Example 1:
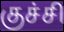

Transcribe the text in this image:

குச்சி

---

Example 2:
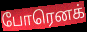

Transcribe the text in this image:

போரெனக்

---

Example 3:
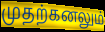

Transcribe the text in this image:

முதற்கனலும்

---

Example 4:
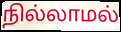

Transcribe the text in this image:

நில்லாமல்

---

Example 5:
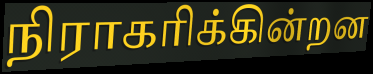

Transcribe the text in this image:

நிராகரிக்கின்றன